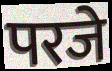
परजे